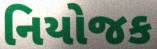
નિયોજક